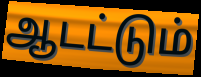
ஆடட்டும்